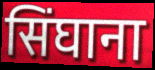
सिंघाना